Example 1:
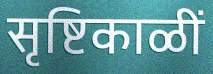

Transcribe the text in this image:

सृष्टिकाळीं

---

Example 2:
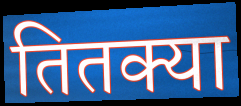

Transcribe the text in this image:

तितक्या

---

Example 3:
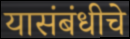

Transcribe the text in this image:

यासंबंधीचे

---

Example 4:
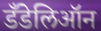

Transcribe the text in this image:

डँडेलिऑन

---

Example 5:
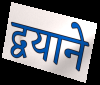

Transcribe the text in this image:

द्वयाने